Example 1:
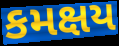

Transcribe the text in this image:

કમક્ષય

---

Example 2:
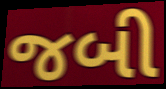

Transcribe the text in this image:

જબી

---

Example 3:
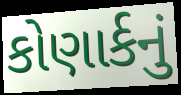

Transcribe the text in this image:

કોણાર્કનું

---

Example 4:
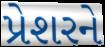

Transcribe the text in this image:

પ્રેશરને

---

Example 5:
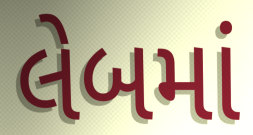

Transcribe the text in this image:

લેબમાં